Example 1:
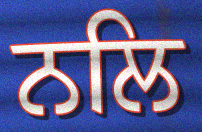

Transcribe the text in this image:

ਨਲਿ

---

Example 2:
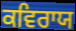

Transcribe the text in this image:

ਕਵਿਰਾਯ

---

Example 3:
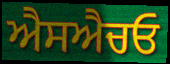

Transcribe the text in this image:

ਐਸਐਚਓ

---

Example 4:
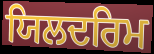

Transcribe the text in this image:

ਯਿਲਦਰਿਮ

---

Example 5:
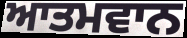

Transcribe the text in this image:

ਆਤਮਵਾਨ